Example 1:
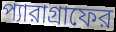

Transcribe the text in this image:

প্যারাগ্রাফের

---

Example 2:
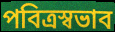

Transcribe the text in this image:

পবিত্রস্বভাব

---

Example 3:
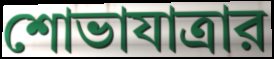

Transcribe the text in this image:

শোভাযাত্রার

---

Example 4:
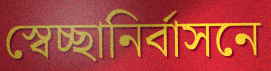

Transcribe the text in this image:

স্বেচ্ছানির্বাসনে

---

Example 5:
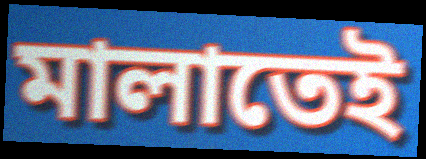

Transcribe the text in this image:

মালাতেই